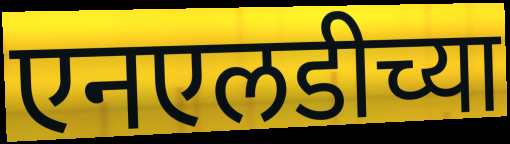
एनएलडीच्या